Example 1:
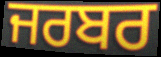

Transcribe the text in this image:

ਜਰਬਰ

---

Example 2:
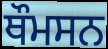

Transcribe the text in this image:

ਥੌਮਸਨ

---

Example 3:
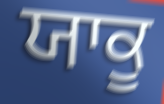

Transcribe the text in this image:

ਯਾਕੂ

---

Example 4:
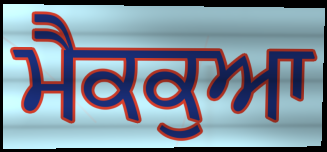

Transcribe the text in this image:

ਮੈਕਕੁਆ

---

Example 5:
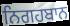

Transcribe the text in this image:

ਨਿਗਹਬਾਨ